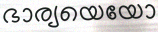
ഭാര്യയെയോ